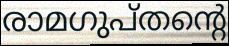
രാമഗുപ്തന്റെ